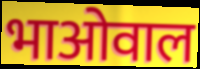
भाओवाल